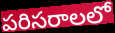
పరిసరాలలో